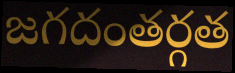
జగదంతర్గత